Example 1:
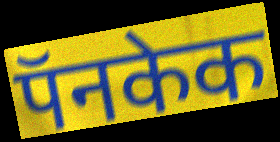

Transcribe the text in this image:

पॅनकेक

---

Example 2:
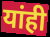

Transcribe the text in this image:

यांही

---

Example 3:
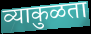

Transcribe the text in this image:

व्याकुळता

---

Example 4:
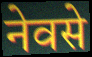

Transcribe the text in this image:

नेवसे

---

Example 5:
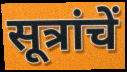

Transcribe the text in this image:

सूत्रांचें